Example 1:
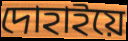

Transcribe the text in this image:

দোহাইয়ে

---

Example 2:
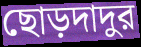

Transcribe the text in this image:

ছোড়দাদুর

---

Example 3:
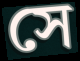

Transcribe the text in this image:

সে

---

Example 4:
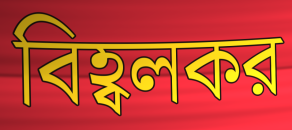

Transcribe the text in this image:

বিহ্বলকর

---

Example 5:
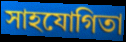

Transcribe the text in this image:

সাহযোগিতা